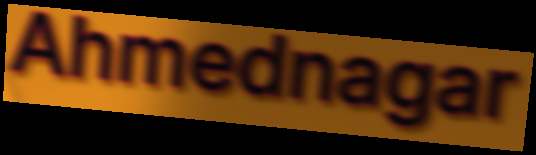
Ahmednagar